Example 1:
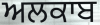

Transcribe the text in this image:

ਅਲਕਾਬ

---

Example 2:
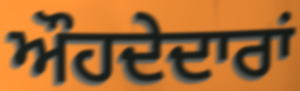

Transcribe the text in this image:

ਔਹਦੇਦਾਰਾਂ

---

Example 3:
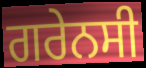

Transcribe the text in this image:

ਗਰੇਨਸੀ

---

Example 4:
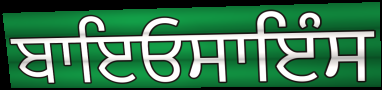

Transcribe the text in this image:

ਬਾਇਓਸਾਇੰਸ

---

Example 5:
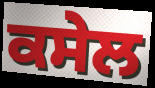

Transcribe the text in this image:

ਕਸੇਲ